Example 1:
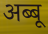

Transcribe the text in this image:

अब्बू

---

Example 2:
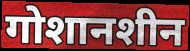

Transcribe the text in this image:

गोशानशीन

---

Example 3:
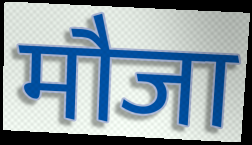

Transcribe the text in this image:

मौजा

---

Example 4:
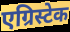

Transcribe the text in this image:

एग्रिस्टेक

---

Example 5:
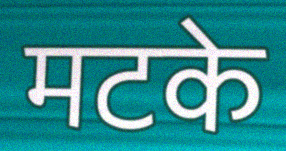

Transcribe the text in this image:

मटके